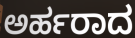
ಅರ್ಹರಾದ